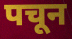
पचून